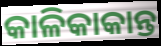
କାଳିକାକାନ୍ତ